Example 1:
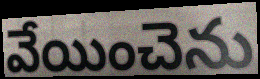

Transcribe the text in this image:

వేయించెను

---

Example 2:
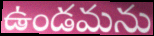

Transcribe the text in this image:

ఉండమను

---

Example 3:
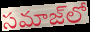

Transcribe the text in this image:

సమాజ్‌లో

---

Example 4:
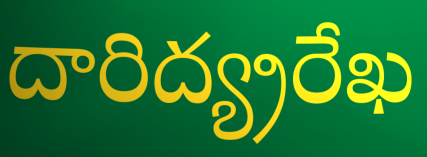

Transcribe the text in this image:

దారిద్య్రరేఖ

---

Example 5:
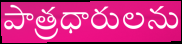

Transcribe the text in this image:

పాత్రధారులను